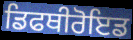
ਡਿਫਥੀਰੋਇਡ